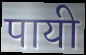
पायी